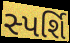
સ્પર્શિ